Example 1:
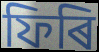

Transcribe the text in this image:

ফিৰি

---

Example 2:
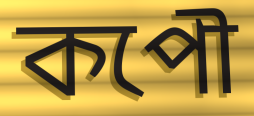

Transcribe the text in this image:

কপৌ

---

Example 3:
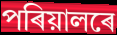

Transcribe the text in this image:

পৰিয়ালৰে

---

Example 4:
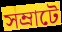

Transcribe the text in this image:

সম্ৰাটে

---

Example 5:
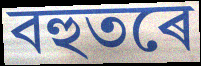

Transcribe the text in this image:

বহুতৰে